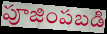
పూజింపబడి